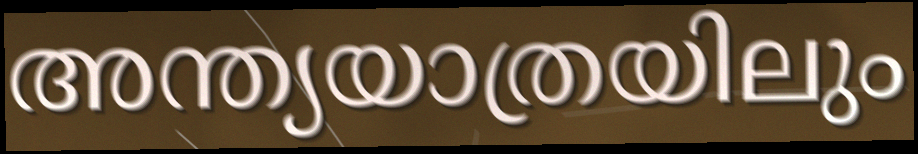
അന്ത്യയാത്രയിലും